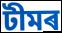
টীমৰ